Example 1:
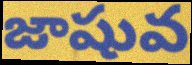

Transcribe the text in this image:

జాషువ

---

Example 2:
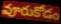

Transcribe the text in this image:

వూరుకోడం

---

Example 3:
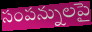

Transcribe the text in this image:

సంపన్నులపై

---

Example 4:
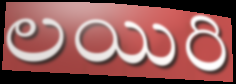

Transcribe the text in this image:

లయిరి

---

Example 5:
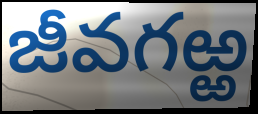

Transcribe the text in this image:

జీవగఱ్ఱ